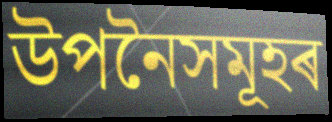
উপনৈসমূহৰ